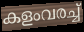
കളംവരച്ച്